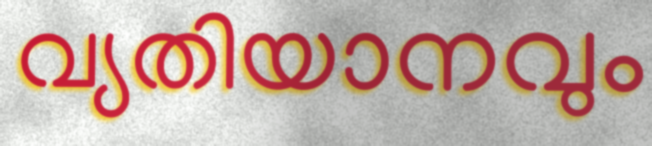
വ്യതിയാനവും